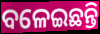
ବଳେଇଛନ୍ତି